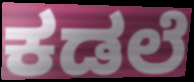
ಕಡಲೆ